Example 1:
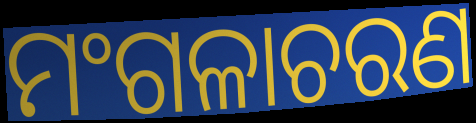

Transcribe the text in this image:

ମଂଗଳାଚରଣ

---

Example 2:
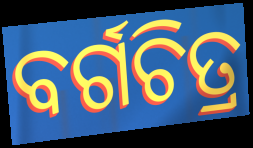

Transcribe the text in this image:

ବର୍ଗଚିତ୍ର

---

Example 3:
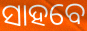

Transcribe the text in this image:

ସାହବେ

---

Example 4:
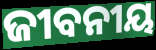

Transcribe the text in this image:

ଜୀବନୀୟ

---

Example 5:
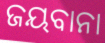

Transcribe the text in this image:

ଜୟବାନା